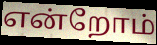
என்றோம்